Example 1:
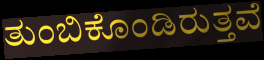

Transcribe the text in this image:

ತುಂಬಿಕೊಂಡಿರುತ್ತವೆ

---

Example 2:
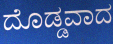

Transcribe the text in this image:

ದೊಡ್ಡವಾದ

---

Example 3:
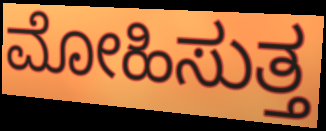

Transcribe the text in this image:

ಮೋಹಿಸುತ್ತ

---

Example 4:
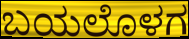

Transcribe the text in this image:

ಬಯಲೊಳಗ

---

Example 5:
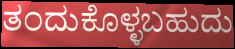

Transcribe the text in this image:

ತಂದುಕೊಳ್ಳಬಹುದು